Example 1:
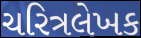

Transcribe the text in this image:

ચરિત્રલેખક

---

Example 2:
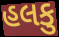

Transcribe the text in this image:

હલકુ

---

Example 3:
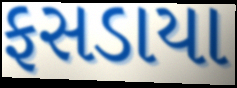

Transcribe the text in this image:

ફસડાયા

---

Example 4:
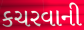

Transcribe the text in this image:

કચરવાની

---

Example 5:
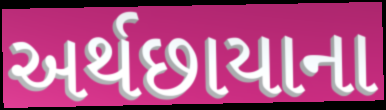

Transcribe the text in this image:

અર્થછાયાના